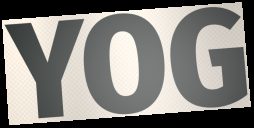
YOG